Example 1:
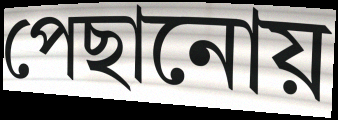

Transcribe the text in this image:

পেছানোয়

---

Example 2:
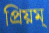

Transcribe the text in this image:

প্রিয়ম্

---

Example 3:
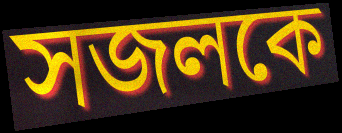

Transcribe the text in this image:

সজলকে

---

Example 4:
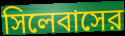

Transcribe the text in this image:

সিলেবাসের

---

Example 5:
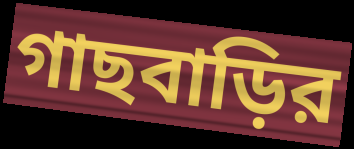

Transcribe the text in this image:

গাছবাড়ির